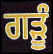
ਗੜੂੰ